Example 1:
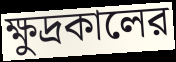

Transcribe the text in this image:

ক্ষুদ্রকালের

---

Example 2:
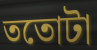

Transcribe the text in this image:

ততোটা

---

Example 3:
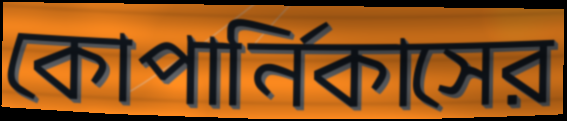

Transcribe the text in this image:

কোপার্নিকাসের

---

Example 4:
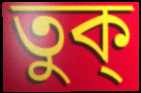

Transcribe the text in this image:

তুক্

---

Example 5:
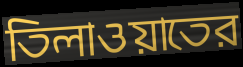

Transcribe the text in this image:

তিলাওয়াতের